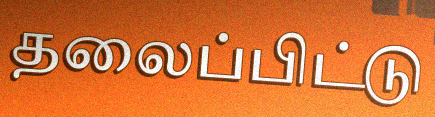
தலைப்பிட்டு